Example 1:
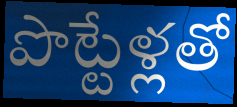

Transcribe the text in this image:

పొట్టేళ్లతో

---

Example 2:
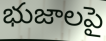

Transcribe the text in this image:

భుజాలపై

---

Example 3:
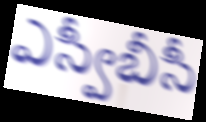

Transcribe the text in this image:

ఎస్వీబీసీ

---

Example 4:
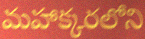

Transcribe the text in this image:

మహాక్కరలోని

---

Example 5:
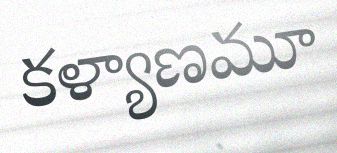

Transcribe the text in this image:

కళ్యాణమూ